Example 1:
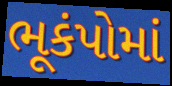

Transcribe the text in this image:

ભૂકંપોમાં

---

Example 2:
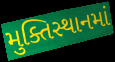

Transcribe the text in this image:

મુક્તિસ્થાનમાં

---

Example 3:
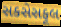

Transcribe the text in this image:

સકસેસફૂલ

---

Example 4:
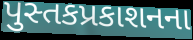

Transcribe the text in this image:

પુસ્તકપ્રકાશનના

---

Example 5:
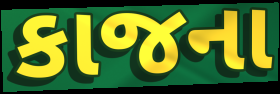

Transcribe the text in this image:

કાજના